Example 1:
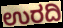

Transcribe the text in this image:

ಉರದಿ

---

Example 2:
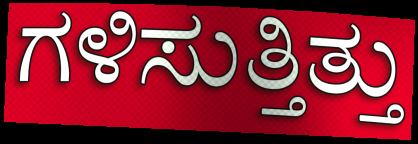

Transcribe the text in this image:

ಗಳಿಸುತ್ತಿತ್ತು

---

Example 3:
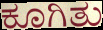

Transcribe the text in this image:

ಕೂಗಿತು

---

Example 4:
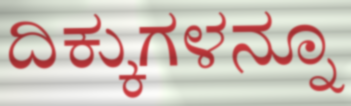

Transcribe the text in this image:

ದಿಕ್ಕುಗಳನ್ನೂ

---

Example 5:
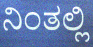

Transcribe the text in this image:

ನಿಂತಲ್ಲಿ